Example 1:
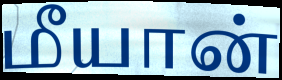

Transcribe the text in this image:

மீயான்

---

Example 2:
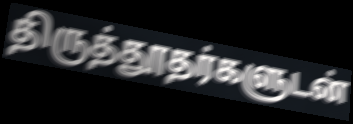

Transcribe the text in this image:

திருத்தூதர்களுடன்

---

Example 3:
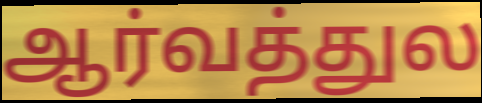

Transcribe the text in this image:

ஆர்வத்துல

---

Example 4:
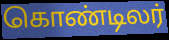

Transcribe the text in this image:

கொண்டிலர்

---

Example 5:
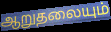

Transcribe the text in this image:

ஆறுதலையும்